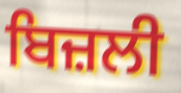
ਬਿਜ਼ਲੀ